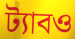
ট্যাবও